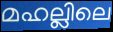
മഹല്ലിലെ